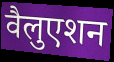
वैलुएशन